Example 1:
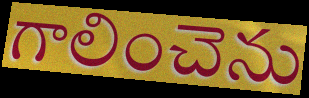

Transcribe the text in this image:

గాలించెను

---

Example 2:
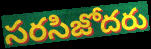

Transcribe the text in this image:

సరసిజోదరు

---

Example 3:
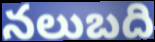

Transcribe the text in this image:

నలుబది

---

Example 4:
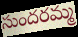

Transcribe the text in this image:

సుందరమ్మ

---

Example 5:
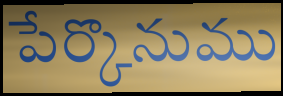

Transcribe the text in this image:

పేర్కొనుము